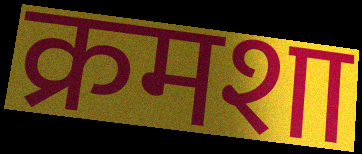
क्रमशा